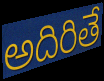
అదిరితే